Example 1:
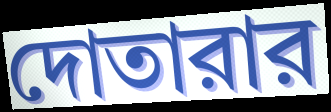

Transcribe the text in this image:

দোতারার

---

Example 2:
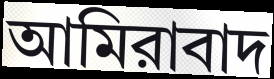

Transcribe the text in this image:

আমিরাবাদ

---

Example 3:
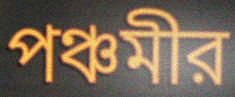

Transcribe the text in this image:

পঞ্চমীর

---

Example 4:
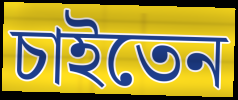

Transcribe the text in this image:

চাইতেন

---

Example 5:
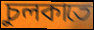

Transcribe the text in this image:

চুলকাতে